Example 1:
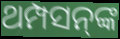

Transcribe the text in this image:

ଥମ୍ପସନ୍‌ଙ୍କ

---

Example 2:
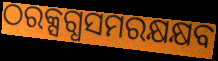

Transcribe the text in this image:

ଠରକ୍ସଗ୍ଧସମରକ୍ଷକ୍ଷବ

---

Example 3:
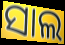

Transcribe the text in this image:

ସାଲ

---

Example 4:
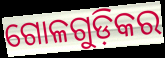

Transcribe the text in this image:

ଗୋଳଗୁଡ଼ିକର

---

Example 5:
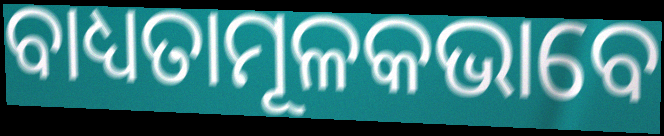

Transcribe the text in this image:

ବାଧ୍ୟତାମୂଳକଭାବେ